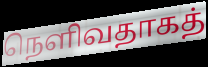
நெளிவதாகத்